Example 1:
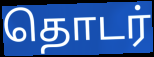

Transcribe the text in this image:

தொடர்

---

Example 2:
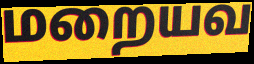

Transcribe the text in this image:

மறையவ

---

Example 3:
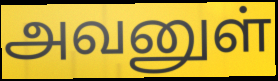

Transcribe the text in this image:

அவனுள்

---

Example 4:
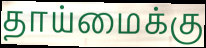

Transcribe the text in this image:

தாய்மைக்கு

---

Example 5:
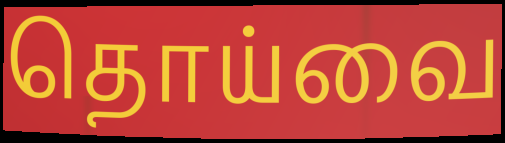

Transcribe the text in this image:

தொய்வை